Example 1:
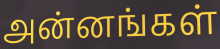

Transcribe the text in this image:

அன்னங்கள்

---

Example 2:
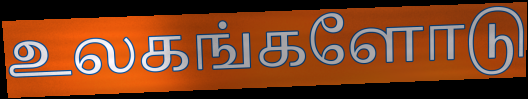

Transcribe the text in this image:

உலகங்களோடு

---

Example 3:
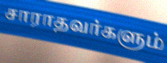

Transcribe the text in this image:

சாராதவர்களும்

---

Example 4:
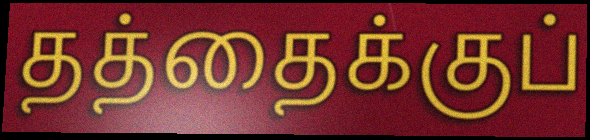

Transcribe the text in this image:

தத்தைக்குப்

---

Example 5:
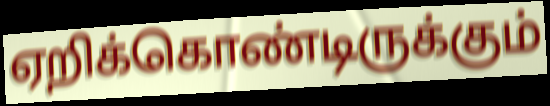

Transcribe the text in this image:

ஏறிக்கொண்டிருக்கும்